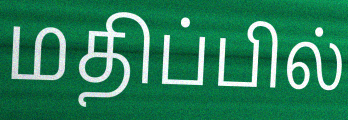
மதிப்பில்